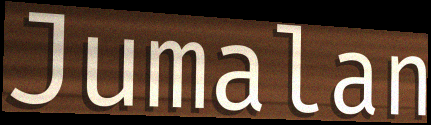
Jumalan